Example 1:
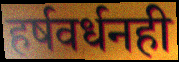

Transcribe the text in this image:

हर्षवर्धनही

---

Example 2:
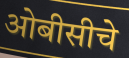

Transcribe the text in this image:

ओबीसीचे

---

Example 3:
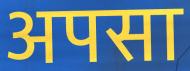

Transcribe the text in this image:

अपसा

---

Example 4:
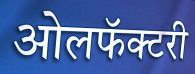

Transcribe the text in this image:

ओलफॅक्टरी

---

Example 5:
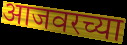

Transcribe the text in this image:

आजवरच्या